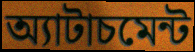
অ্যাটাচমেন্ট